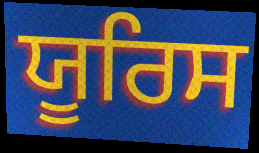
ਯੂਰਿਸ